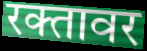
रक्तावर